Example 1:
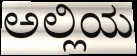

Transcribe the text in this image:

ಅಲ್ಲಿಯ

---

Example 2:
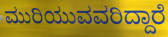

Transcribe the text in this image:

ಮುರಿಯುವವರಿದ್ದಾರೆ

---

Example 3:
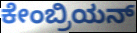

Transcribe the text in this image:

ಕೇಂಬ್ರಿಯನ್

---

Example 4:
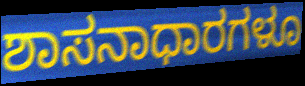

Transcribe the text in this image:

ಶಾಸನಾಧಾರಗಳೂ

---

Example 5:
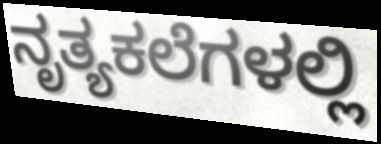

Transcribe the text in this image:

ನೃತ್ಯಕಲೆಗಳಲ್ಲಿ